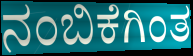
ನಂಬಿಕೆಗಿಂತ